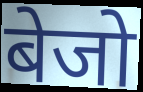
बेजो